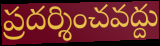
ప్రదర్శించవద్దు